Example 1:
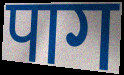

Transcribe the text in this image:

पाग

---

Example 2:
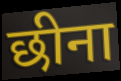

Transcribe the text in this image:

छीना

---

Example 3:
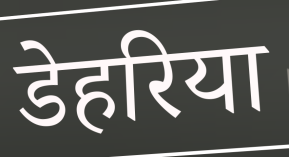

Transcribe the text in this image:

डेहरिया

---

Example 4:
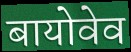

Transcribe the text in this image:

बायोवेव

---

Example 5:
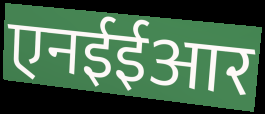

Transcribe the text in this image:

एनईईआर